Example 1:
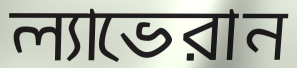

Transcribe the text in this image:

ল্যাভেরান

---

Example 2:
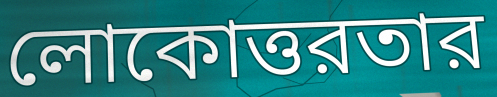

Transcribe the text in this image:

লোকোত্তরতার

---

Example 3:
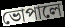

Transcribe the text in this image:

ভোপালে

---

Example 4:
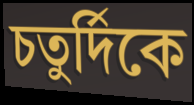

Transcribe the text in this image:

চতুর্দিকে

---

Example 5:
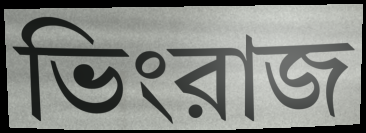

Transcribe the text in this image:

ভিংরাজ